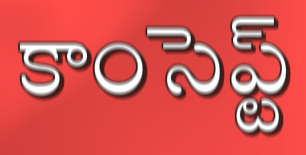
కాంసెప్ట్